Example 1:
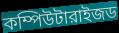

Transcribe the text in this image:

কম্পিউটারাইজড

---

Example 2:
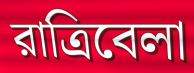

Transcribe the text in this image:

রাত্রিবেলা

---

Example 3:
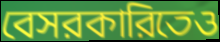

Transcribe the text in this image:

বেসরকারিতেও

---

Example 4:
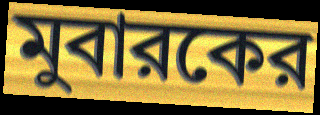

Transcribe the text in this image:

মুবারকের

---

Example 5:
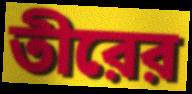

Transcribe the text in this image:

তীরের